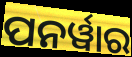
ପନର୍ୱାର